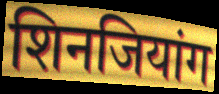
शिनजियांग